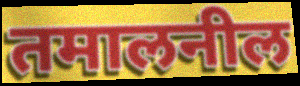
तमालनील